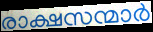
രാക്ഷസന്മാർ